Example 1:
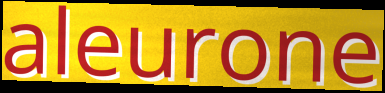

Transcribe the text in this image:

aleurone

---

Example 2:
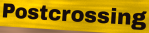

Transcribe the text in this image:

Postcrossing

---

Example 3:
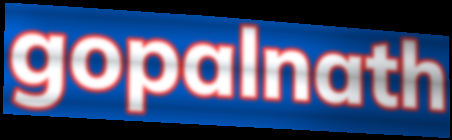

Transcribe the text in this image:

gopalnath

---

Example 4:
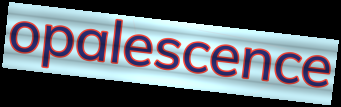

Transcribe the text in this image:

opalescence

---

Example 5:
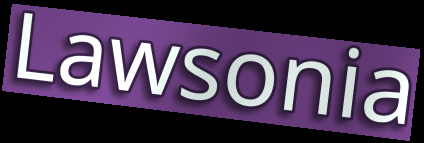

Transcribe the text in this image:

Lawsonia